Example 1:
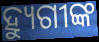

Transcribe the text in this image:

ହ୍ୟୁଗୀଙ୍କ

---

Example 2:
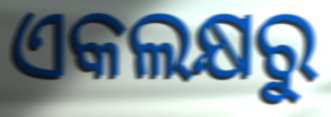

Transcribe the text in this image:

ଏକଲକ୍ଷରୁ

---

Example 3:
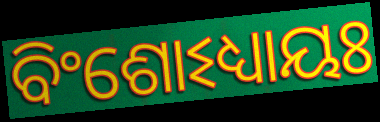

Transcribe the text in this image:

ବିଂଶୋଽଧ୍ୟାୟଃ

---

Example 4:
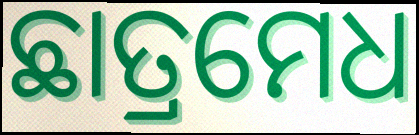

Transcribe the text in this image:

ଛାତ୍ରମେଧ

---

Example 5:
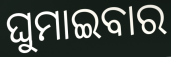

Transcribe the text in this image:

ଘୁମାଇବାର